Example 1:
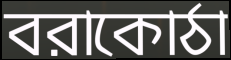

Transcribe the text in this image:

বরাকোঠা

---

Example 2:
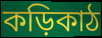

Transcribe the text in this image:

কড়িকাঠ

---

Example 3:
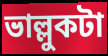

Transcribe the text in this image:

ভাল্লুকটা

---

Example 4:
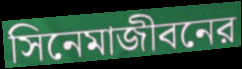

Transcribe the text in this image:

সিনেমাজীবনের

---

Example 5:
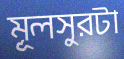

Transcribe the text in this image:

মূলসুরটা